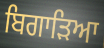
ਬਿਗਾੜਿਆ